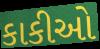
કાકીઓ